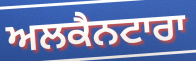
ਅਲਕੈਨਟਾਰਾ